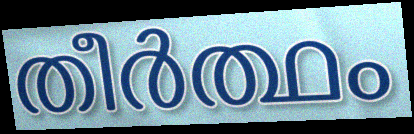
തീർത്ഥം